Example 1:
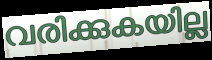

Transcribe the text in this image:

വരിക്കുകയില്ല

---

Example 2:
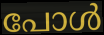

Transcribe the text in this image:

പോൾ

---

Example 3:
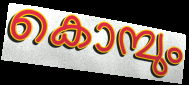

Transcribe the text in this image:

കൊമ്പും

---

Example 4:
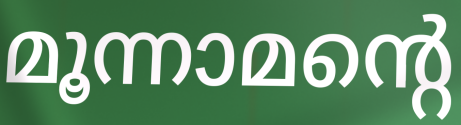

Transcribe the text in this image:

മൂന്നാമന്റെ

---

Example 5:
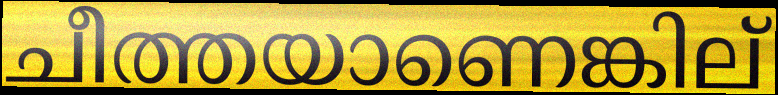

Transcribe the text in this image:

ചീത്തയാണെങ്കില്